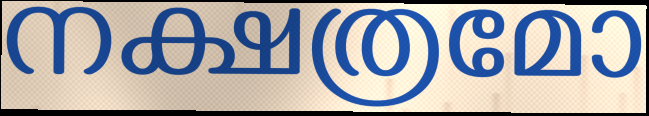
നക്ഷത്രമോ